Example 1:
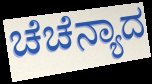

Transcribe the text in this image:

ಚೆಚೆನ್ಯಾದ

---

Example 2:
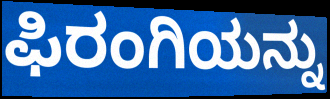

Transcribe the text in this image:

ಫಿರಂಗಿಯನ್ನು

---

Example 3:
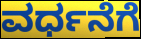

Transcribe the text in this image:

ವರ್ಧನೆಗೆ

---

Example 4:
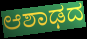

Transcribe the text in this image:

ಆಶಾಢದ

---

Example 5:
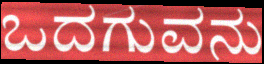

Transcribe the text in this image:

ಒದಗುವನು